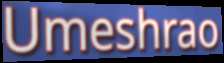
Umeshrao